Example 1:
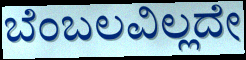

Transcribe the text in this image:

ಬೆಂಬಲವಿಲ್ಲದೇ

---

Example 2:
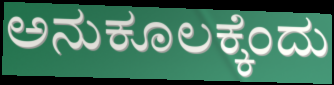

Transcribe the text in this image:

ಅನುಕೂಲಕ್ಕೆಂದು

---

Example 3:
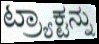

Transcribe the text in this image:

ಟ್ರ್ಯಾಕ್ಟನ್ನು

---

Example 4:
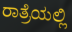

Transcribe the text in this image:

ರಾತ್ರೆಯಲ್ಲಿ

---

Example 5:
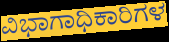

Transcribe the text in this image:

ವಿಭಾಗಾಧಿಕಾರಿಗಳ